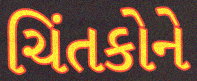
ચિંતકોને